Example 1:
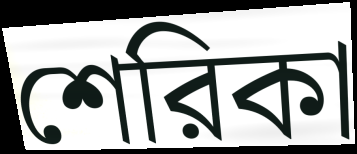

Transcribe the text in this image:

শেরিকা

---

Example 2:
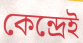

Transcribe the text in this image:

কেন্দ্রেই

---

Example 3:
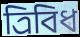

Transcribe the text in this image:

ত্রিবিধ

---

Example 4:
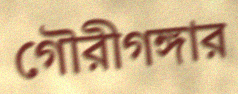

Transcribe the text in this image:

গৌরীগঙ্গার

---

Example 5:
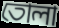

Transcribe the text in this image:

তোলা